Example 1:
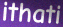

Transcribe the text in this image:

ithati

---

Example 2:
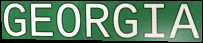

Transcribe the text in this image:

GEORGIA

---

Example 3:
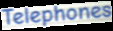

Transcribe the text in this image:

Telephones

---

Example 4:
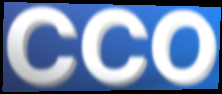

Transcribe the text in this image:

CCO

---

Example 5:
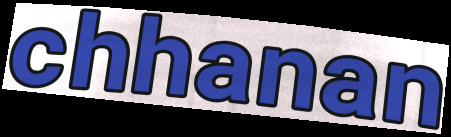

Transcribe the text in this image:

chhanan